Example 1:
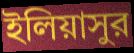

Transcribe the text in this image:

ইলিয়াসুর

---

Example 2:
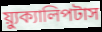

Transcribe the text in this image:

য়্যুক্যালিপটাস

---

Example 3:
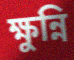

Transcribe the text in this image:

ক্ষুন্নি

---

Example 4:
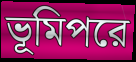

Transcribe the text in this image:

ভূমিপরে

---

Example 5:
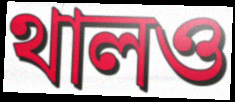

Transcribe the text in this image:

থালও